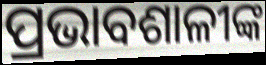
ପ୍ରଭାବଶାଳୀଙ୍କ